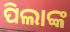
ପିଲାଙ୍କ